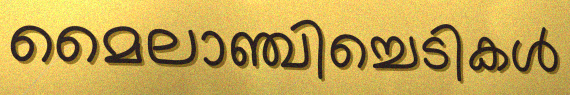
മൈലാഞ്ചിച്ചെടികൾ